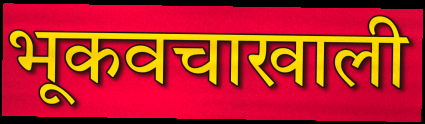
भूकवचाखाली